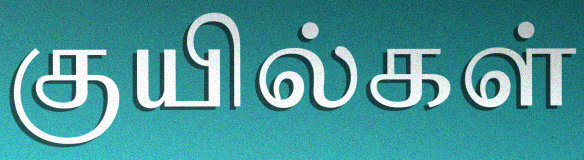
குயில்கள்